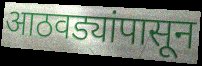
आठवड्यांपासून